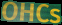
OHCs